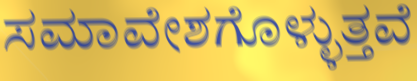
ಸಮಾವೇಶಗೊಳ್ಳುತ್ತವೆ